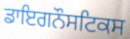
ਡਾਇਗਨੌਸਟਿਕਸ